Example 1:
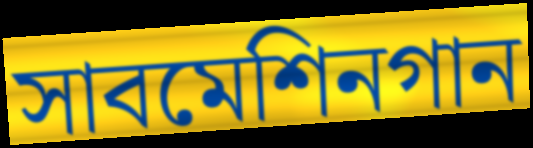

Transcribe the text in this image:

সাবমেশিনগান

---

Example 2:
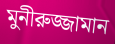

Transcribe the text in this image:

মুনীরুজ্জামান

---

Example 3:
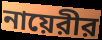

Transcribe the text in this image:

নায়েরীর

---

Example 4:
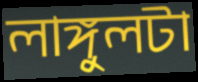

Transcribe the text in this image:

লাঙ্গুলটা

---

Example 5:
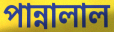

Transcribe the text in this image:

পান্নালাল